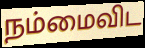
நம்மைவிட